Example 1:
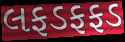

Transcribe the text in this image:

લફડફફડ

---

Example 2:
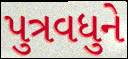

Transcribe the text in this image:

પુત્રવધુને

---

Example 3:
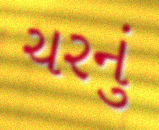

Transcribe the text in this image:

ચરનું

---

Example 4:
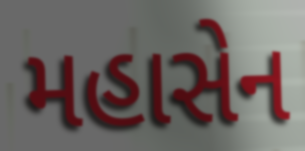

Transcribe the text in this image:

મહાસેન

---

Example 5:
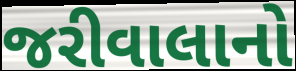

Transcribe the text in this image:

જરીવાલાનો